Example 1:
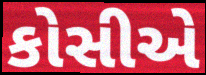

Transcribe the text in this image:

કોસીએ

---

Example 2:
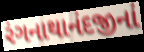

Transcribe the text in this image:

રંગનાથાનંદજીનાં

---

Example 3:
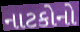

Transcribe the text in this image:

નાટકોનો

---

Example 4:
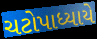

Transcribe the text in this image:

ચટોપાધ્યાયે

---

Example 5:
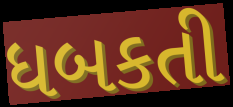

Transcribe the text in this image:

ધબકતી